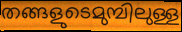
തങ്ങളുടെമുമ്പിലുള്ള